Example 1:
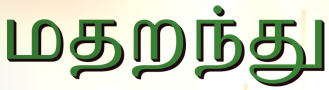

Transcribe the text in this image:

மதறந்து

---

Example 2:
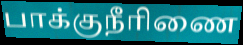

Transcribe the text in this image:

பாக்குநீரிணை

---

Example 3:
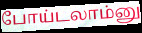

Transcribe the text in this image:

போய்டலாம்னு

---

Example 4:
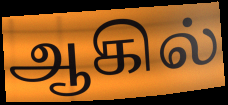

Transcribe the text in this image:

ஆகில்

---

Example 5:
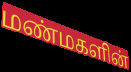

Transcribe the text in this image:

மண்மகளின்